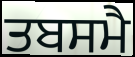
ਤਬਸਮੈ